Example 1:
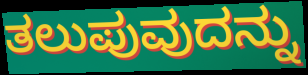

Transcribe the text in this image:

ತಲುಪುವುದನ್ನು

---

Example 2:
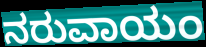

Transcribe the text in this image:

ನರುವಾಯಂ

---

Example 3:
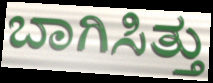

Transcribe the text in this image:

ಬಾಗಿಸಿತ್ತು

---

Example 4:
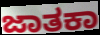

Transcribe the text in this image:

ಜಾತಕಾ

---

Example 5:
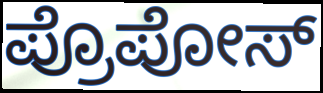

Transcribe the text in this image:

ಪ್ರೊಪೋಸ್